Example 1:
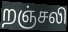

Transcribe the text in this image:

றஞ்சலி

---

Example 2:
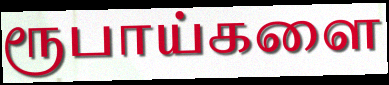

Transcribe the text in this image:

ரூபாய்களை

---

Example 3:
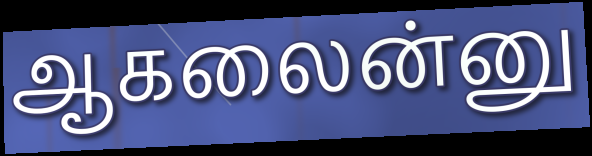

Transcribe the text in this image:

ஆகலைன்னு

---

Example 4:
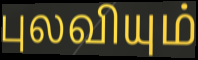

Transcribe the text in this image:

புலவியும்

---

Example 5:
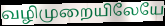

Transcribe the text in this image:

வழிமுறையிலேயே